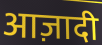
आज़ादी